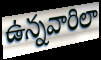
ఉన్నవారిలా